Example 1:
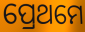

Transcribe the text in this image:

ପ୍ରେଥମେ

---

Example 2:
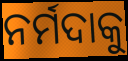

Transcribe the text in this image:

ନର୍ମଦାକୁ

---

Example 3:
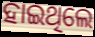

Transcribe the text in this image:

ହାଇଥିଲେ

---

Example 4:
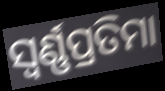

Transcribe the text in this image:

ସ୍ୱର୍ଣ୍ଣପ୍ରତିମା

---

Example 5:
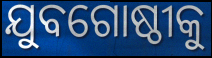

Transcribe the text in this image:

ଯୁବଗୋଷ୍ଠୀକୁ